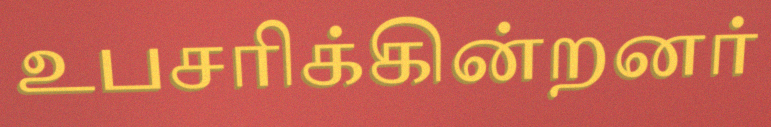
உபசரிக்கின்றனர்